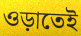
ওড়াতেই